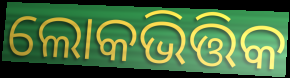
ଲୋକଭିତ୍ତିକ